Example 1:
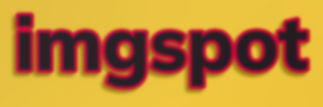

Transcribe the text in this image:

imgspot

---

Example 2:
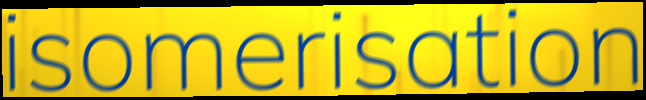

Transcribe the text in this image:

isomerisation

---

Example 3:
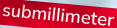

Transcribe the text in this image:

submillimeter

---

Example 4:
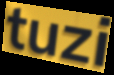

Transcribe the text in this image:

tuzi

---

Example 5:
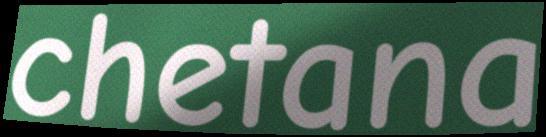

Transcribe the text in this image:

chetana